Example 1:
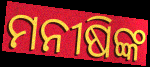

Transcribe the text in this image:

ମନୀଷିଙ୍କ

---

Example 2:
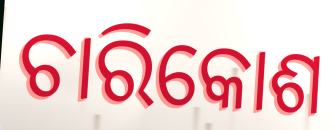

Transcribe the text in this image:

ଚାରିକୋଶ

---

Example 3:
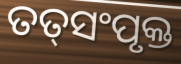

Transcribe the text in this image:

ତତ୍‌ସଂପୃକ୍ତ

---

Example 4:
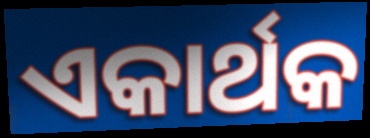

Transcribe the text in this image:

ଏକାର୍ଥକ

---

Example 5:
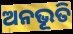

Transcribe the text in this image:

ଅନଭୂତି